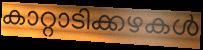
കാറ്റാടിക്കഴകൾ